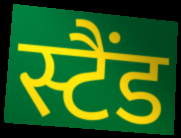
स्टैंड